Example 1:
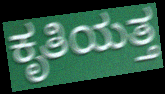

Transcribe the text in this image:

ಕೃತಿಯತ್ತ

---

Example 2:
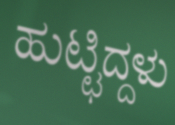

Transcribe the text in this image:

ಹುಟ್ಟಿದ್ದಳು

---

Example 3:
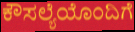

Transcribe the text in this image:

ಕೌಸಲ್ಯೆಯೊಂದಿಗೆ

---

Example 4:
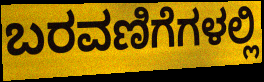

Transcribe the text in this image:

ಬರವಣಿಗೆಗಳಲ್ಲಿ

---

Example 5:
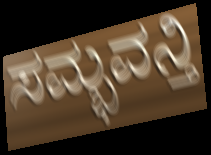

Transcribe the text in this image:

ಸಮ್ಭವನ್ತಿ